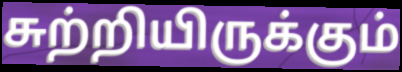
சுற்றியிருக்கும்